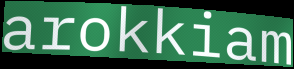
arokkiam